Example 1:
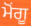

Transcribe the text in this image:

ਮੋਂਗੂ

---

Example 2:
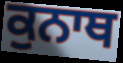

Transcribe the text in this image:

ਕੁਨਾਥ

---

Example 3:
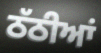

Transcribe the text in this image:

ਠੱਠੀਆਂ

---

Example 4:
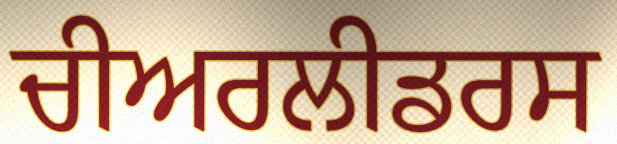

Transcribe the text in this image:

ਚੀਅਰਲੀਡਰਸ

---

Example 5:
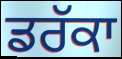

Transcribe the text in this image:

ਡਰੱਕਾ